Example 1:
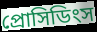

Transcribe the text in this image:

প্রোসিডিংস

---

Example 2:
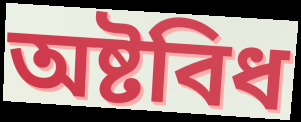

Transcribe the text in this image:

অষ্টবিধ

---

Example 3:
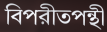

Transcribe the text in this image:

বিপরীতপন্থী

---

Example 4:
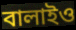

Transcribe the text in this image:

বালাইও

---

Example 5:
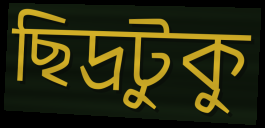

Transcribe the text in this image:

ছিদ্রটুকু